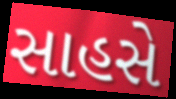
સાહસે